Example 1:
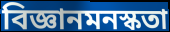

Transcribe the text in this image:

বিজ্ঞানমনস্কতা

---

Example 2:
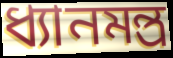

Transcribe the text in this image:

ধ্যানমন্ত্র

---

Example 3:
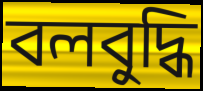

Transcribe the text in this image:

বলবুদ্ধি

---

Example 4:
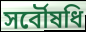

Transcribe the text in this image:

সর্বৌষধি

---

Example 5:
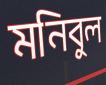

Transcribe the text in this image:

মনিবুল